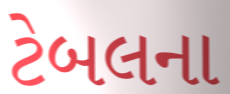
ટેબલના